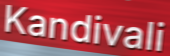
Kandivali